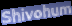
Shivohum